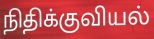
நிதிக்குவியல்